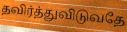
தவிர்த்துவிடுவதே